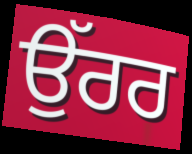
ਉੱਰਰ